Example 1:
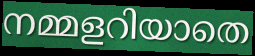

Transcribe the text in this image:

നമ്മളറിയാതെ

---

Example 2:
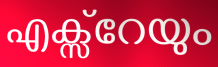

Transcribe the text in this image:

എക്സ്റേയും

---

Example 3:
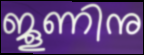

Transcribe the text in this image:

ജൂണിനു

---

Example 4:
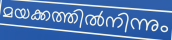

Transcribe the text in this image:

മയക്കത്തിൽനിന്നും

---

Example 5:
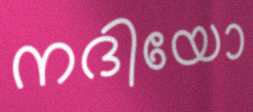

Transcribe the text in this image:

നദിയോ